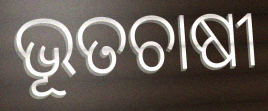
ଭୂତଚାଷୀ